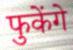
फुकेंगे